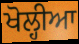
ਖੋਲ੍ਹੀਆ